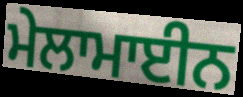
ਮੇਲਾਮਾਈਨ